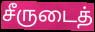
சீருடைத்